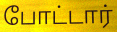
போட்டார்